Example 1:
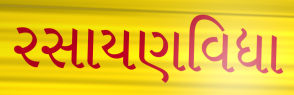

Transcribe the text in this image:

રસાયણવિદ્યા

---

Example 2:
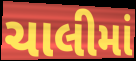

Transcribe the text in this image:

ચાલીમાં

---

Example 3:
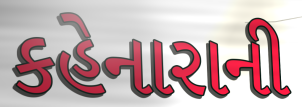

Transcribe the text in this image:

કહેનારાની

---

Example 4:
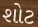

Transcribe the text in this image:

શોટ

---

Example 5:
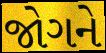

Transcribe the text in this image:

જોગને